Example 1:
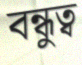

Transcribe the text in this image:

বন্ধুত্ব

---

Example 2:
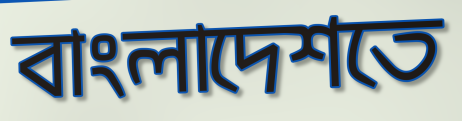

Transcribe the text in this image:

বাংলাদেশতে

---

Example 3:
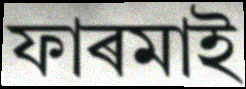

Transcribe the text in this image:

ফাৰমাই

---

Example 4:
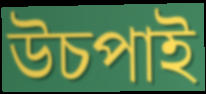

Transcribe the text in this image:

উচপাই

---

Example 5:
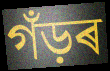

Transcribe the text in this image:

গঁড়ৰ